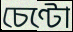
চেণ্টো